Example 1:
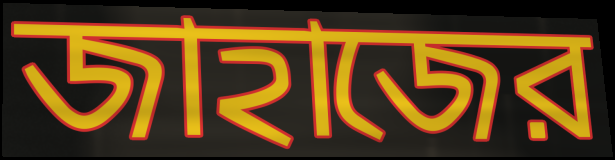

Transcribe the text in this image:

জাহাজের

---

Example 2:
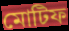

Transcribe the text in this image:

মোটিফ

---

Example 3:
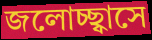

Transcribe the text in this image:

জলোচ্ছ্বাসে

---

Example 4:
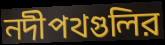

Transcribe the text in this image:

নদীপথগুলির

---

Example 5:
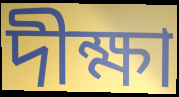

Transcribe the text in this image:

দীক্ষা